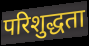
परिशुद्धता